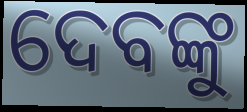
ଦେବଙ୍କୁ